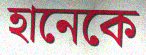
হানেকে